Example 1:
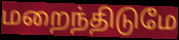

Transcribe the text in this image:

மறைந்திடுமே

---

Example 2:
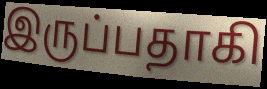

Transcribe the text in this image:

இருப்பதாகி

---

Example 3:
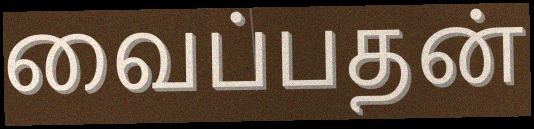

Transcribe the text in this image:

வைப்பதன்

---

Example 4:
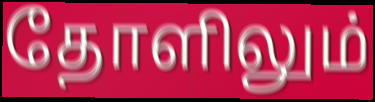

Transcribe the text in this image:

தோளிலும்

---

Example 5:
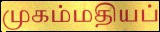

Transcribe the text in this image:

முகம்மதியப்